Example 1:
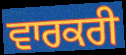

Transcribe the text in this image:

ਵਾਰਕਰੀ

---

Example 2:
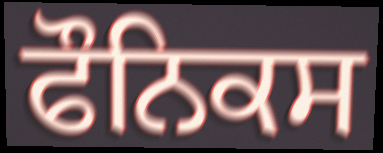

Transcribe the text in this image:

ਫੌਨਿਕਸ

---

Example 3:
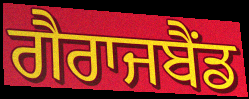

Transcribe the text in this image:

ਗੈਰਾਜਬੈਂਡ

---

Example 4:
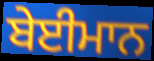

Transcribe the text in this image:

ਬੇਈਮਾਨ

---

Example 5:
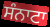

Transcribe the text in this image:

ਸੰਨਾਟਾ